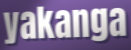
yakanga